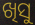
ଖିସୁ